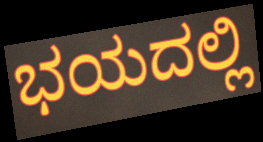
ಭಯದಲ್ಲಿ